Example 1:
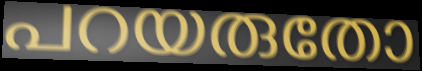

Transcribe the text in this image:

പറയരുതോ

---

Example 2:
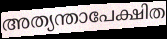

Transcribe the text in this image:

അത്യന്താപേക്ഷിത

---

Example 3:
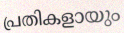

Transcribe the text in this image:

പ്രതികളായും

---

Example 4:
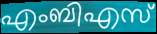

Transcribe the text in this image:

എംബിഎസ്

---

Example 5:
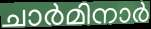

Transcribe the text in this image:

ചാർമിനാർ